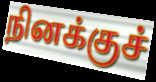
நினக்குச்